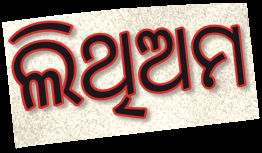
ଲିଥିଅମ